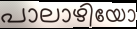
പാലാഴിയോ